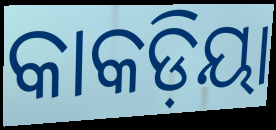
କାକଡ଼ିୟା